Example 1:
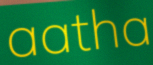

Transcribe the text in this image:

aatha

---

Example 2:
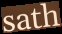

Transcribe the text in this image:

sath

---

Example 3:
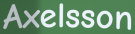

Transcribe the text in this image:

Axelsson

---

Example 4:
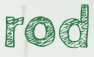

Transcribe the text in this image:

rod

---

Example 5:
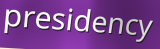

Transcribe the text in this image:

presidency